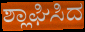
ಶ್ಲಾಘಿಸಿದ